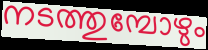
നടത്തുമ്പോഴും